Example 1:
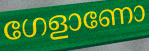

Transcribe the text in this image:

ഗേളാണോ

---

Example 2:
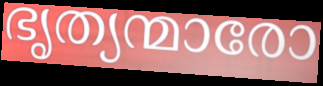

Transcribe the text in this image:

ഭൃത്യന്മാരോ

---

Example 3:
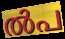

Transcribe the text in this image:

ൽപ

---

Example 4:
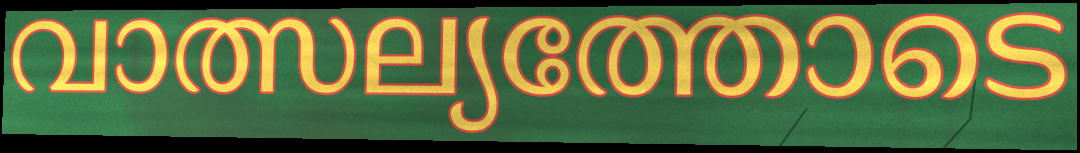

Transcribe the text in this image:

വാത്സല്യത്തോടെ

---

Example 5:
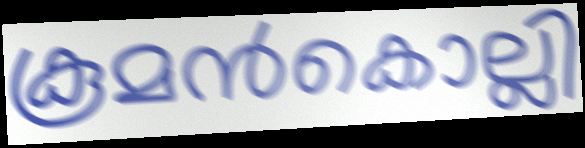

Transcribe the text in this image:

കൂമൻകൊല്ലി